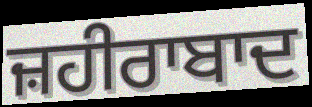
ਜ਼ਹੀਰਾਬਾਦ